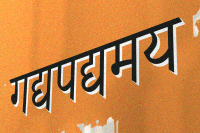
गद्यपद्यमय